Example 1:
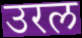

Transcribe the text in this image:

उरल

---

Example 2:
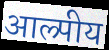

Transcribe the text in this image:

आल्पीय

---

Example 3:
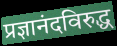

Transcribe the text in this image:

प्रज्ञानंदविरुद्ध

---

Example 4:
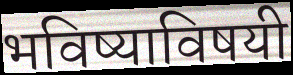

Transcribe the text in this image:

भविष्याविषयी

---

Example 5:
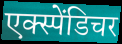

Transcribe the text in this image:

एक्स्पेंडिचर